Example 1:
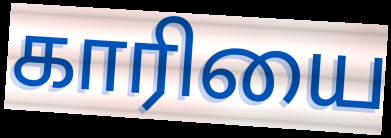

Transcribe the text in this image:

காரியை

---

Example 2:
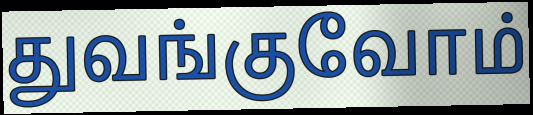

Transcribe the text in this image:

துவங்குவோம்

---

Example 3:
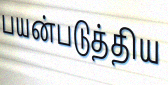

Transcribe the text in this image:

பயன்படுத்திய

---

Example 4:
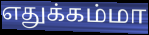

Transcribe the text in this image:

எதுக்கம்மா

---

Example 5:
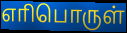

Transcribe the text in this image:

எரிபொருள்